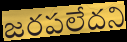
జరపలేదని